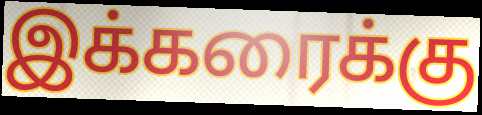
இக்கரைக்கு